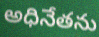
అధినేతను